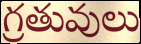
గ్రతువులు